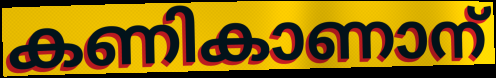
കണികാണാന്